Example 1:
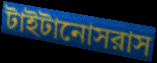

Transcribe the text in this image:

টাইটানোসরাস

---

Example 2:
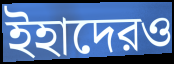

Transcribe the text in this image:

ইহাদেরও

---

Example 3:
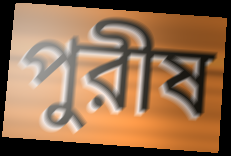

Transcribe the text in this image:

পুরীষ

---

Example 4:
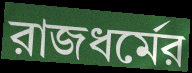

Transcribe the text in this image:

রাজধর্মের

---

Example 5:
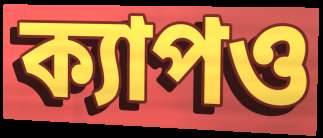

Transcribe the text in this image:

ক্যাপও